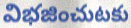
విభజించుటకు